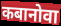
कबानोवा